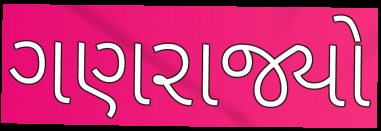
ગણરાજ્યો